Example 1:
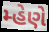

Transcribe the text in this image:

મ્હેણે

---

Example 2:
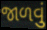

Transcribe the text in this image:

જાળવું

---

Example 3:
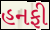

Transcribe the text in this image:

હનફી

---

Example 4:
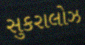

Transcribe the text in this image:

સુકરાલોઝ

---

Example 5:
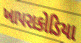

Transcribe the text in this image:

ખાપરાકોડિયા